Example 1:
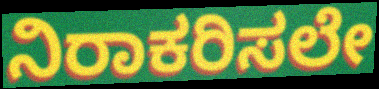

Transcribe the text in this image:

ನಿರಾಕರಿಸಲೇ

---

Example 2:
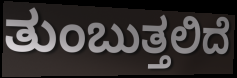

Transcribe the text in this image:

ತುಂಬುತ್ತಲಿದೆ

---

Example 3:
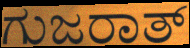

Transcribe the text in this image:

ಗುಜರಾತ್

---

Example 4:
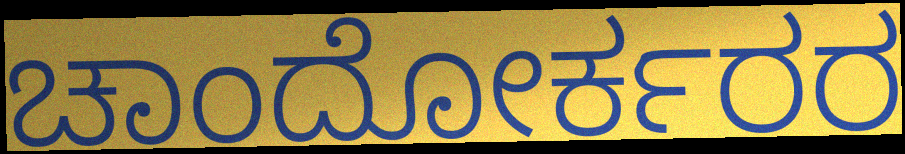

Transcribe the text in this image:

ಚಾಂದೋರ್ಕರರ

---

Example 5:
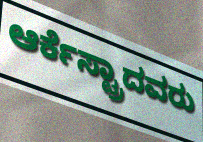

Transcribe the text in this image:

ಆರ್ಕೆಸ್ಟ್ರಾದವರು